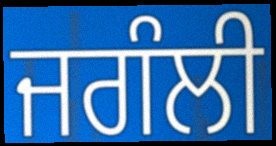
ਜਗੰਲੀ